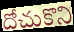
దోచుకొని